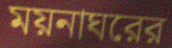
ময়নাঘরের